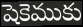
షెకెముకు